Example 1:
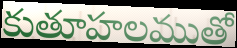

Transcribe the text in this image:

కుతూహలముతో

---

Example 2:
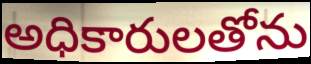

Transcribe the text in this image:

అధికారులతోను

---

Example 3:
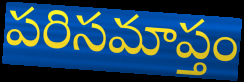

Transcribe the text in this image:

పరిసమాప్తం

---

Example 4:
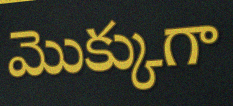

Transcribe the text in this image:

మొక్కుగా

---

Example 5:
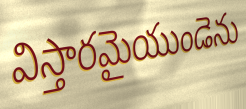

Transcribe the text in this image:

విస్తారమైయుండెను